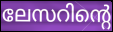
ലേസറിന്റെ